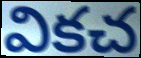
వికచ